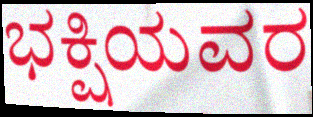
ಭಕ್ಷಿಯವರ